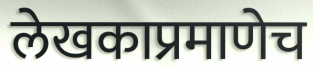
लेखकाप्रमाणेच